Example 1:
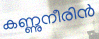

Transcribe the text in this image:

കണ്ണുനീരിൻ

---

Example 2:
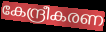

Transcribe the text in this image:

കേന്ദ്രീകരണ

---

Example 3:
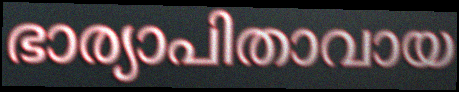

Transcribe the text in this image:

ഭാര്യാപിതാവായ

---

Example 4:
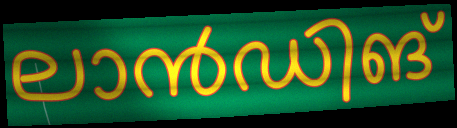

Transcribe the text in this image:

ലാൻഡിങ്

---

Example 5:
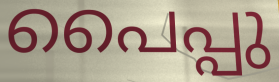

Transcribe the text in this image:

പൈപ്പു